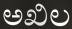
ಅಖಿಲ